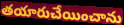
తయారుచేయించాను